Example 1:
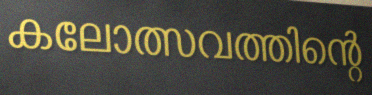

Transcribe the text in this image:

കലോത്സവത്തിന്റെ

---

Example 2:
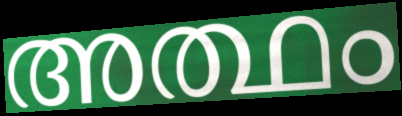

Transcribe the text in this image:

അത്ഥം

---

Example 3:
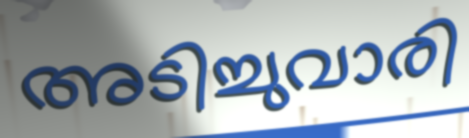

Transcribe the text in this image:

അടിച്ചുവാരി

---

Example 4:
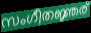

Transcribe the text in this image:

സംഗീതജ്ഞര്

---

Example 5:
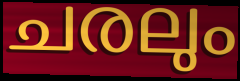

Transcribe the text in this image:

ചരലും